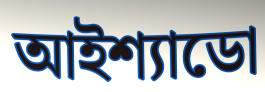
আইশ্যাডো